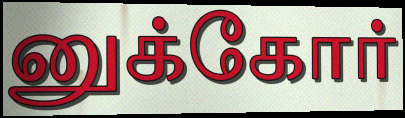
னுக்கோர்